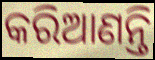
କରିଆଣନ୍ତି